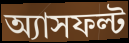
অ্যাসফল্ট